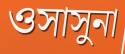
ওসাসুনা